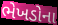
ભેખડોના